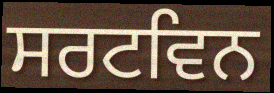
ਸਰਟਵਿਨ